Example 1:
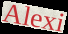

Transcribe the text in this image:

Alexi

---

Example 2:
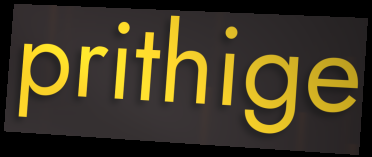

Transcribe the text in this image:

prithige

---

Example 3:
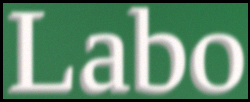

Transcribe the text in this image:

Labo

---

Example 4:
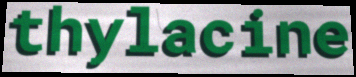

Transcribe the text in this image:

thylacine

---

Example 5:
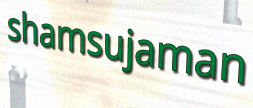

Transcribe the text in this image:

shamsujaman